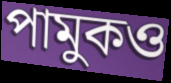
পামুকও